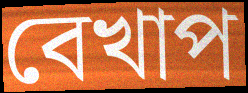
বেখাপ